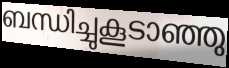
ബന്ധിച്ചുകൂടാഞ്ഞു